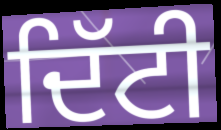
ਦਿੱਟੀ